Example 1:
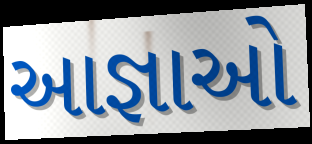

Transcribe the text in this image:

આજ્ઞાઓ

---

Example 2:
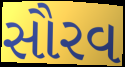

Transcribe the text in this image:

સૌરવ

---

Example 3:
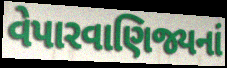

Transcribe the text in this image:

વેપારવાણિજ્યનાં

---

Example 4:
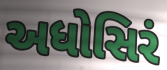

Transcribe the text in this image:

અધોસિરં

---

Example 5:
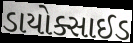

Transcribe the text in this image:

ડાયોક્સાઈડ